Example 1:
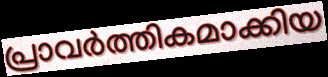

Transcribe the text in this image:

പ്രാവർത്തികമാക്കിയ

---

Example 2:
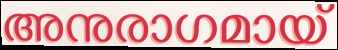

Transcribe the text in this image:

അനുരാഗമായ്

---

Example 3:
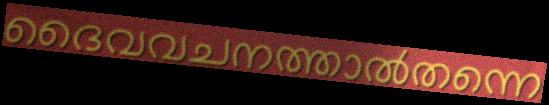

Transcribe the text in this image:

ദൈവവചനത്താൽതന്നെ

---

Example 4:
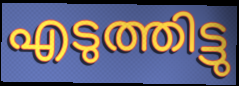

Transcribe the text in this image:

എടുത്തിട്ടു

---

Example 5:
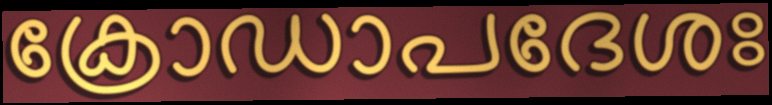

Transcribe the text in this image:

ക്രോഡാപദേശഃ